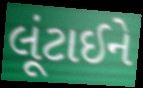
લૂંટાઈને